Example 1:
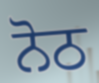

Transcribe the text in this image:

ਨੋਠ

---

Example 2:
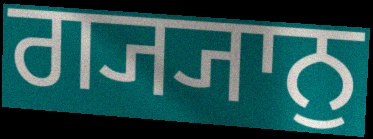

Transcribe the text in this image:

ਗ੍ਯ੍ਯਾਨੁ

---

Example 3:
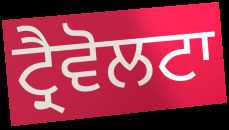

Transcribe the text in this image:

ਟ੍ਰੈਵੋਲਟਾ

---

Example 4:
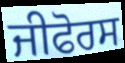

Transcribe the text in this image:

ਜੀਫੋਰਸ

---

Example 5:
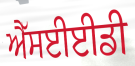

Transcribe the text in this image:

ਐੱਸਈਈਡੀ